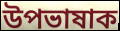
উপভাষাক